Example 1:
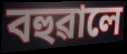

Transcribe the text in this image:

বহুৱালে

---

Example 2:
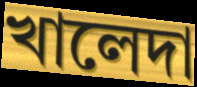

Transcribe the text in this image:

খালেদা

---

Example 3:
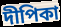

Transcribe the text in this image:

দীপিকা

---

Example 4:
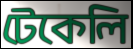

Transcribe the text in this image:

টেকেলি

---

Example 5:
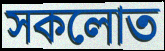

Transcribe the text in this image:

সকলোত